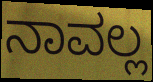
ನಾವಲ್ಲ